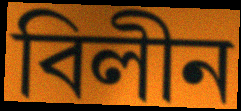
বিলীন